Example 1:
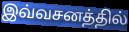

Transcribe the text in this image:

இவ்வசனத்தில்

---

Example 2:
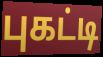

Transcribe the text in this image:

புகட்டி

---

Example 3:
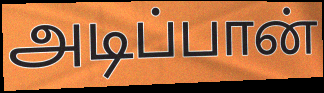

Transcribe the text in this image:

அடிப்பான்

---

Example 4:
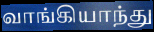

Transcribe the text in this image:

வாங்கியாந்து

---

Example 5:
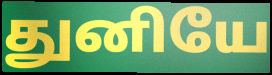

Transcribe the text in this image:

துனியே